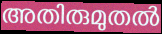
അതിരുമുതൽ